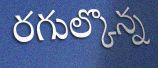
రగుల్కొన్న